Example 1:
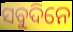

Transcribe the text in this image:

ସବୁଦିନେ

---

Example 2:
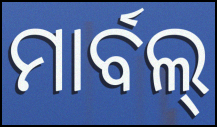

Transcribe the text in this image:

ମାର୍ବଲ୍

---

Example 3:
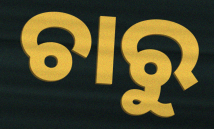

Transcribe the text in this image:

ଚାରୁ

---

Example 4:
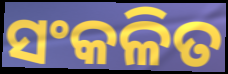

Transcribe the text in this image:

ସଂକଳିତ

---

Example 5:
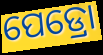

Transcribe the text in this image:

ପେଡ୍ରୋ